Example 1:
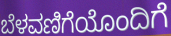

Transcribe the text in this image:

ಬೆಳವಣಿಗೆಯೊಂದಿಗೆ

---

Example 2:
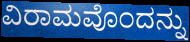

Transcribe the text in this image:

ವಿರಾಮವೊಂದನ್ನು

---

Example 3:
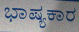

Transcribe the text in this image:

ಭಾಷ್ಯಕಾರ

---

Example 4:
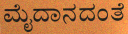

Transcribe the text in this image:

ಮೈದಾನದಂತೆ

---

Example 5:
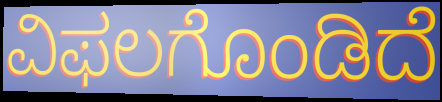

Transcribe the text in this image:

ವಿಫಲಗೊಂಡಿದೆ